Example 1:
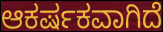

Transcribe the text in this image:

ಆಕರ್ಷಕವಾಗಿದೆ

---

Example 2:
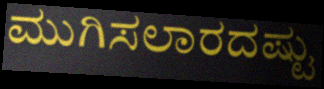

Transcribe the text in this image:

ಮುಗಿಸಲಾರದಷ್ಟು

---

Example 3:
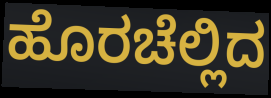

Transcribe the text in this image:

ಹೊರಚೆಲ್ಲಿದ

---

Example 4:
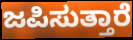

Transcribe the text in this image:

ಜಪಿಸುತ್ತಾರೆ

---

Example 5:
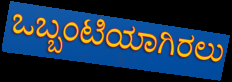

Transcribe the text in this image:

ಒಬ್ಬಂಟಿಯಾಗಿರಲು